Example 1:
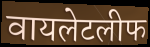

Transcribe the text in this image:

वायलेटलीफ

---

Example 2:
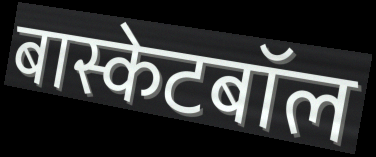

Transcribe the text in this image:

बास्केटबॉल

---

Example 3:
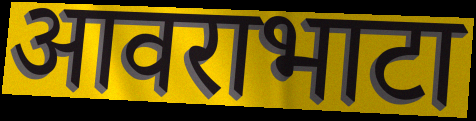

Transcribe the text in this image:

आवराभाटा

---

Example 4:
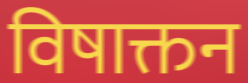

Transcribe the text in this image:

विषाक्तन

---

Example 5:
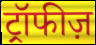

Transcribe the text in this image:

ट्रॉफीज़